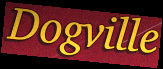
Dogville